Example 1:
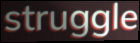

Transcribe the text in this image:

struggle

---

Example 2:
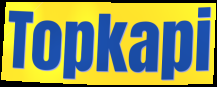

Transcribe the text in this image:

Topkapi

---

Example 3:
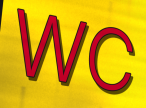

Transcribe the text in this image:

WC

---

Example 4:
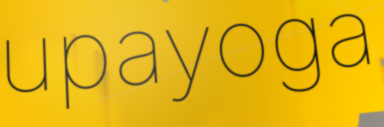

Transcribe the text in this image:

upayoga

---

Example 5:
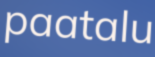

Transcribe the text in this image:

paatalu